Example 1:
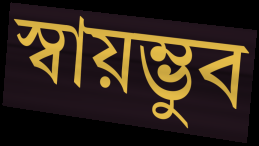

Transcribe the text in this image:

স্বায়ম্ভুব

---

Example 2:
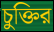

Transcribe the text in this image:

চুক্তির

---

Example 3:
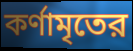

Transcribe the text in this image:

কর্ণামৃতের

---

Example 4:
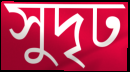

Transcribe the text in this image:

সুদৃঢ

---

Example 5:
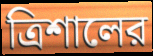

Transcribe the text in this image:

ত্রিশালের